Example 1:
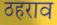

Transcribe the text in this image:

ठहराव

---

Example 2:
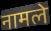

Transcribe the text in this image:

नामले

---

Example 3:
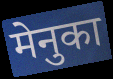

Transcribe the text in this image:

मेनुका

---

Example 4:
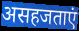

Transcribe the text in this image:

असहजताएं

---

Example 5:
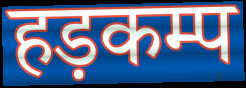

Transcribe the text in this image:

हड़कम्प